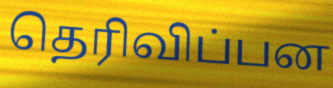
தெரிவிப்பன